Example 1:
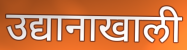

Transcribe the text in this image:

उद्यानाखाली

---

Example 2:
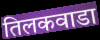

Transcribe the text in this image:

तिलकवाडा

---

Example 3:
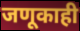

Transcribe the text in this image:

जणूकाही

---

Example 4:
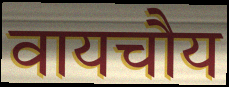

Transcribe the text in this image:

वायचौय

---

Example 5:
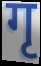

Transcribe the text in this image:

गृ